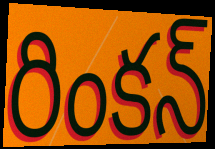
రింకన్